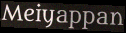
Meiyappan